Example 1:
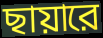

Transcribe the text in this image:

ছায়ারে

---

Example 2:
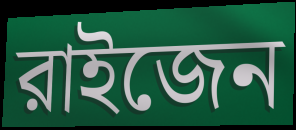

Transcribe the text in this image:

রাইজেন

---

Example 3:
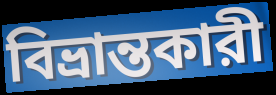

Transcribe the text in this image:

বিভ্রান্তকারী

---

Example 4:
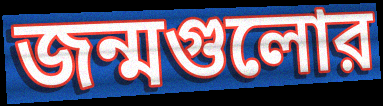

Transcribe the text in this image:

জন্মগুলোর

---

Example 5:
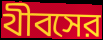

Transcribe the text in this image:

থীবসের